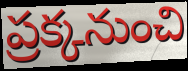
ప్రక్కనుంచి